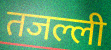
तजल्ली